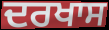
ਦਰਖਾਸ